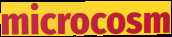
microcosm